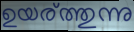
ഉയര്ത്തുന്നു